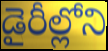
డైరీల్లోని